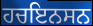
ਹਚਇਨਸਨ